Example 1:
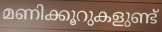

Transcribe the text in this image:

മണിക്കൂറുകളുണ്ട്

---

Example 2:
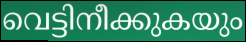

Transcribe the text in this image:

വെട്ടിനീക്കുകയും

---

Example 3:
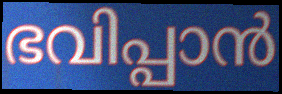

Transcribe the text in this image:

ഭവിപ്പാൻ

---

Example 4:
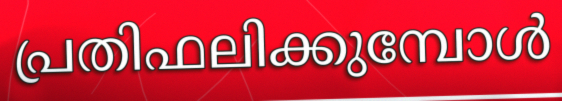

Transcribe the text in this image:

പ്രതിഫലിക്കുമ്പോൾ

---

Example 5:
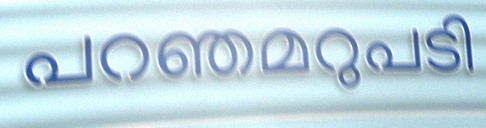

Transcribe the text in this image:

പറഞമറുപടി